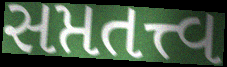
સપ્તતત્ત્વ